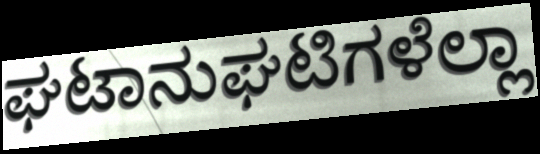
ಘಟಾನುಘಟಿಗಳೆಲ್ಲಾ